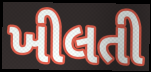
ખીલતી